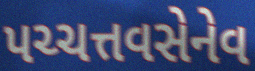
પચ્ચત્તવસેનેવ